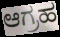
ಆಗ್ರಹ